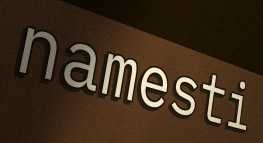
namesti